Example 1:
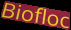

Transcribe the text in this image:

Biofloc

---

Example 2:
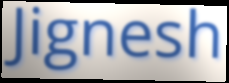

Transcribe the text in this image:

Jignesh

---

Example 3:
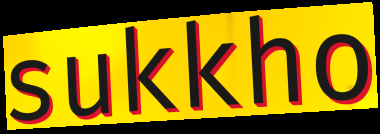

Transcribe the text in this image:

sukkho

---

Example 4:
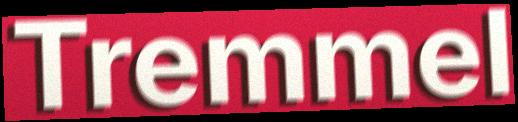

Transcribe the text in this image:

Tremmel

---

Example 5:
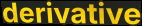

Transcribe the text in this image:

derivative